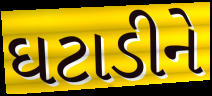
ઘટાડીને